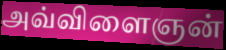
அவ்விளைஞன்